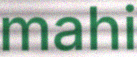
mahi